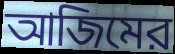
আজিমের